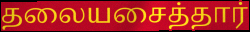
தலையசைத்தார்